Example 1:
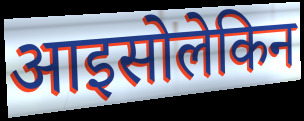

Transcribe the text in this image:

आइसोलेकिन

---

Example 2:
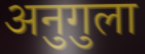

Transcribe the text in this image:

अनुगुला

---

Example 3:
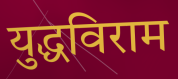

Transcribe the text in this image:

युद्धविराम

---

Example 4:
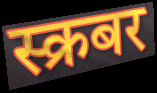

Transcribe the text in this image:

स्‍क्रबर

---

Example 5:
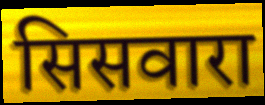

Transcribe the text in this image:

सिसवारा